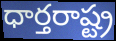
ధార్తరాష్ట్ర